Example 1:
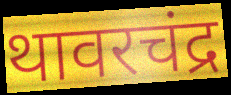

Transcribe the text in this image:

थावरचंद्र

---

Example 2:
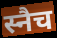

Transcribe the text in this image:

स्नैच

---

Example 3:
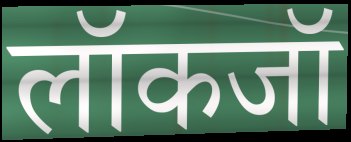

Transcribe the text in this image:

लॉकजॉ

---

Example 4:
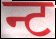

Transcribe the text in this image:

न्ट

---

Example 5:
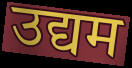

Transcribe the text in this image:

उद्यम